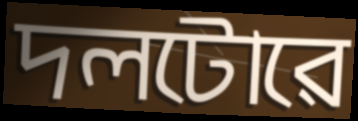
দলটোৱে